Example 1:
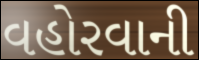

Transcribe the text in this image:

વહોરવાની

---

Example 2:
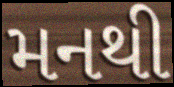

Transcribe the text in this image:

મનથી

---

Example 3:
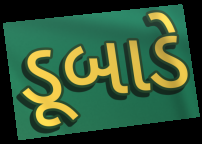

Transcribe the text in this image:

ડૂબાડે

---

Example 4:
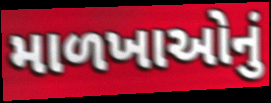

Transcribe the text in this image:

માળખાઓનું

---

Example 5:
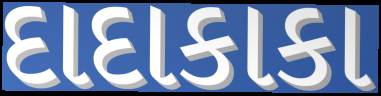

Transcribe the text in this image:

દાદાકાકા